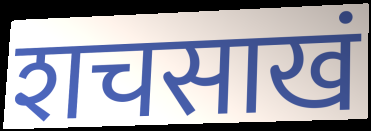
शचसाखं